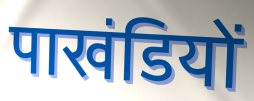
पाखंडियों